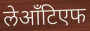
लेआँटिएफ